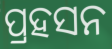
ପ୍ରହସନ